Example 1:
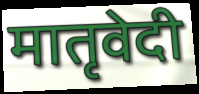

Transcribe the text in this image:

मातृवेदी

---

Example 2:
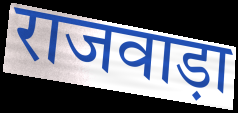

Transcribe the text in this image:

राजवाड़ा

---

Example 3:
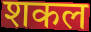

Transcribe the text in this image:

शकल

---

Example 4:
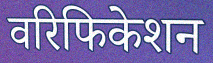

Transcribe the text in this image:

वरिफिकेशन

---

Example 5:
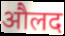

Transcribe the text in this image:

औलद